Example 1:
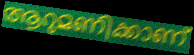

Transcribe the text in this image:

ആറുമണിക്കാണ്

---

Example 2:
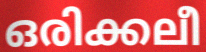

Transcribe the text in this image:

ഒരിക്കലീ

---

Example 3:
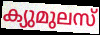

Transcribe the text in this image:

ക്യുമുലസ്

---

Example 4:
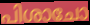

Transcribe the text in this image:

പിശാചോ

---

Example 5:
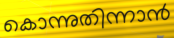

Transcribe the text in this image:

കൊന്നുതിന്നാൻ